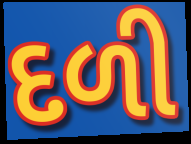
દળી